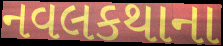
નવલકથાના